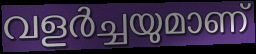
വളർച്ചയുമാണ്